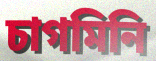
চাগমিনি